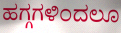
ಹಗ್ಗಗಳಿಂದಲೂ